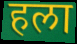
हला